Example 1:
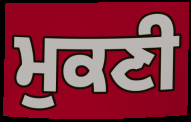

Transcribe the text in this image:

ਮੁਕਣੀ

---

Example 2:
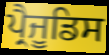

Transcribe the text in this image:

ਪ੍ਰੈਜੂਡਿਸ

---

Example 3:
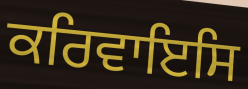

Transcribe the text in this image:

ਕਰਿਵਾਇਸਿ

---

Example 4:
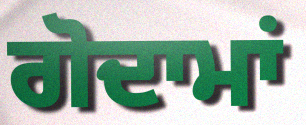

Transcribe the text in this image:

ਗੋਦਾਮਾਂ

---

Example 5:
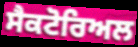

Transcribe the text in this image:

ਸੈਕਟੋਰਿਅਲ